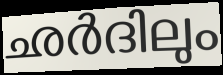
ഛർദിലും